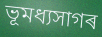
ভূমধ্যসাগৰ